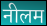
नीलम